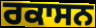
ਰਕਾਸਨ